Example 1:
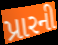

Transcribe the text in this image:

પ્રારની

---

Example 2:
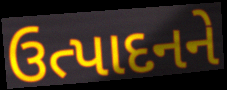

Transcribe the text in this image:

ઉત્પાદનને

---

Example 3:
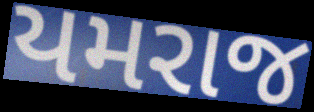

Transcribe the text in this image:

યમરાજ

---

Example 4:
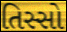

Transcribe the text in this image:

તિસ્સો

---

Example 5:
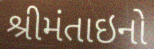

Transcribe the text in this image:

શ્રીમંતાઇનો